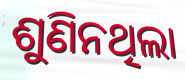
ଶୁଣିନଥିଲା